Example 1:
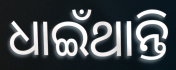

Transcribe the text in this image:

ଧାଇଁଥାନ୍ତି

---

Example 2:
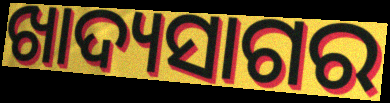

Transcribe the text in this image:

ଖାଦ୍ୟସାଗର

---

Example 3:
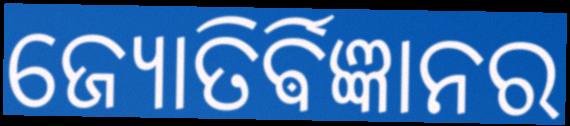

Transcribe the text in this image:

ଜ୍ୟୋତିର୍ଵିଜ୍ଞାନର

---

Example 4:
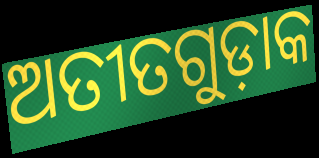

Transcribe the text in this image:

ଅତୀତଗୁଡ଼ାକ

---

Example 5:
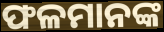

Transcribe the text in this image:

ଫଳମାନଙ୍କ